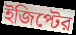
ইজিপ্টের